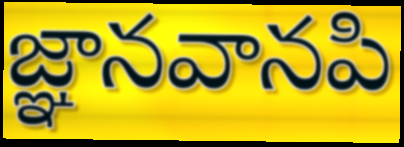
జ్ఞానవానపి